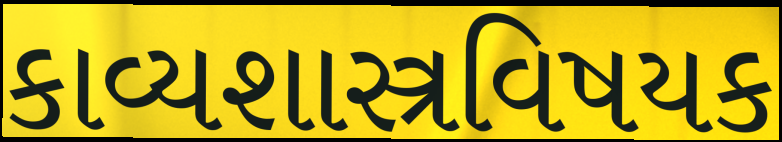
કાવ્યશાસ્ત્રવિષયક